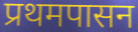
प्रथमपासन